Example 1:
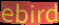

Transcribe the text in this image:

ebird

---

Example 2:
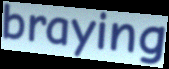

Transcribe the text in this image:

braying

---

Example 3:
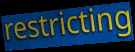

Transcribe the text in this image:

restricting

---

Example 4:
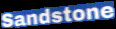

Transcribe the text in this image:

Sandstone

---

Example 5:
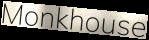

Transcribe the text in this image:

Monkhouse